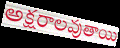
అక్షరాలవుతాయి